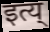
इत्य्